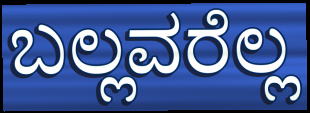
ಬಲ್ಲವರೆಲ್ಲ